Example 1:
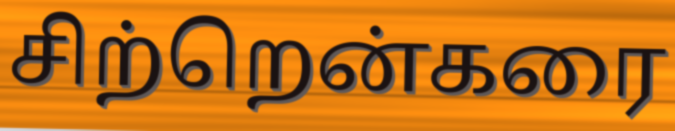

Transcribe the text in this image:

சிற்றென்கரை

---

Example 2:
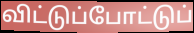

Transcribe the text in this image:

விட்டுப்போட்டுப்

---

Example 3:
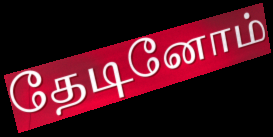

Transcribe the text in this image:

தேடினோம்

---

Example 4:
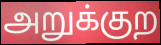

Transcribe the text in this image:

அறுக்குற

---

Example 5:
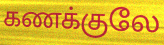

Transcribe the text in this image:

கணக்குலே